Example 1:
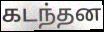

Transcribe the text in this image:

கடந்தன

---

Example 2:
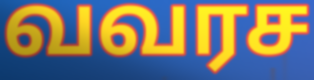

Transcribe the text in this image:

வவரச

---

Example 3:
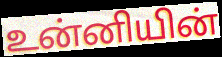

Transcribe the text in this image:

உன்னியின்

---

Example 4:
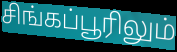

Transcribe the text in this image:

சிங்கப்பூரிலும்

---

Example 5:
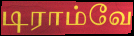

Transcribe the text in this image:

டிராம்வே